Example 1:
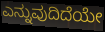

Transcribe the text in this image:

ಎನ್ನುವುದಿದೆಯೇ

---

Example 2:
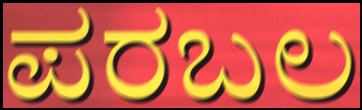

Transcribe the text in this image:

ಪರಬಲ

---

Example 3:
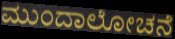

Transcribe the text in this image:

ಮುಂದಾಲೋಚನೆ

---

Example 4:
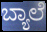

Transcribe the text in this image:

ಬ್ಯಾಲೆ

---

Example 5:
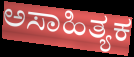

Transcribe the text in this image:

ಅಸಾಹಿತ್ಯಕ